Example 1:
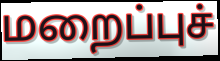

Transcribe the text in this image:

மறைப்புச்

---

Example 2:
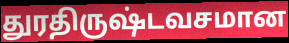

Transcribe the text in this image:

துரதிருஷ்டவசமான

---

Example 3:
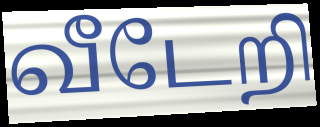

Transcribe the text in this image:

வீடேறி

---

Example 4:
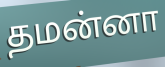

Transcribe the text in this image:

தமன்னா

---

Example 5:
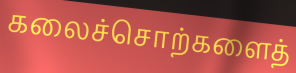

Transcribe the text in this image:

கலைச்சொற்களைத்